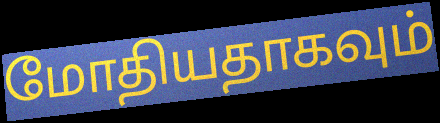
மோதியதாகவும்